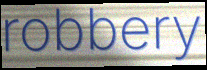
robbery